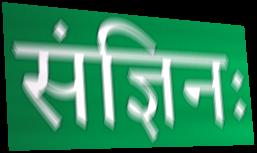
संज्ञिनः